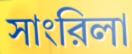
সাংরিলা